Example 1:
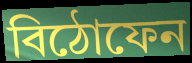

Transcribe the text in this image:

বিঠোফেন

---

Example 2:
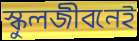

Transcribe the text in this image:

স্কুলজীবনেই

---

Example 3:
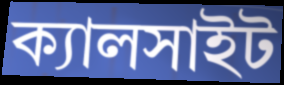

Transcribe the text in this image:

ক্যালসাইট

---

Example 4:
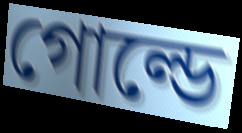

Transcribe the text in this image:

গোল্ডে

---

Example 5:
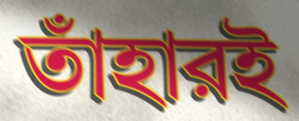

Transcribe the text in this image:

তাঁহারই